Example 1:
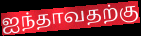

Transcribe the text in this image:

ஐந்தாவதற்கு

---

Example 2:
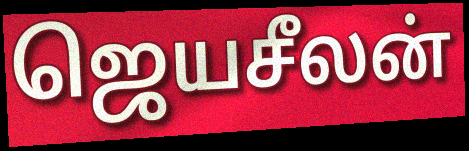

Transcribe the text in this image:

ஜெயசீலன்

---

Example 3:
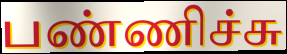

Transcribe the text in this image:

பண்ணிச்சு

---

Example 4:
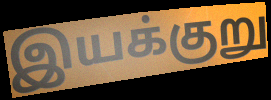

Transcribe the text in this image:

இயக்குறு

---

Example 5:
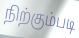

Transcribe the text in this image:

நிற்கும்படி